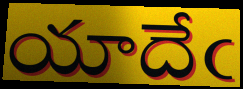
యాదేఁ